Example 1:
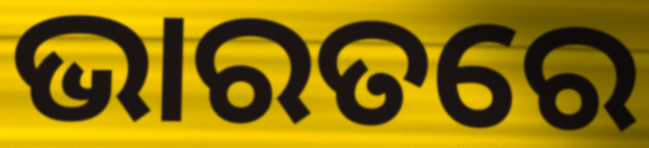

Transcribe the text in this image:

ଭାରତରେ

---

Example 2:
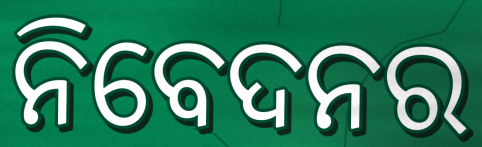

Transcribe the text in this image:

ନିବେଦନର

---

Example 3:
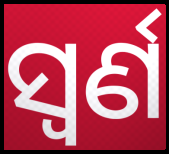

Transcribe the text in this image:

ସ୍ୱର୍ଣ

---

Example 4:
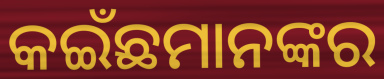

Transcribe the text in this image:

କଇଁଛମାନଙ୍କର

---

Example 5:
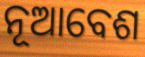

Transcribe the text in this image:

ନୂଆବେଶ